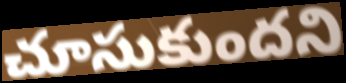
చూసుకుందని